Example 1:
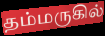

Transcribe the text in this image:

தம்மருகில்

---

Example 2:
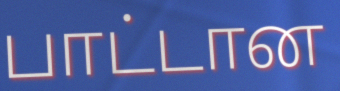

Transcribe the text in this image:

பாட்டான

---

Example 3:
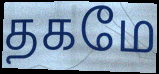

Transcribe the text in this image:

தகமே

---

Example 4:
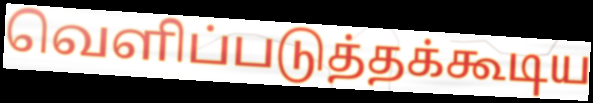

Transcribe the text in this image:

வெளிப்படுத்தக்கூடிய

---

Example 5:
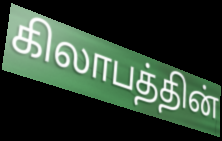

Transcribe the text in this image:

கிலாபத்தின்